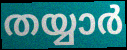
തയ്യാർ